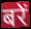
बरें